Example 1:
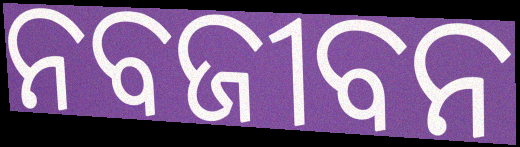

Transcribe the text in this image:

ନବଜୀବନ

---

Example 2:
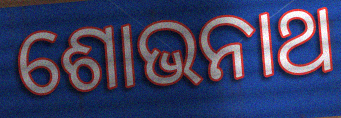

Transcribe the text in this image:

ଶୋଭନାଥ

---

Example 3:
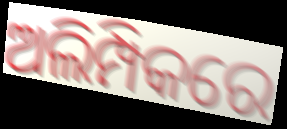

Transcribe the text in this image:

ଅଲିମ୍ପିକରେ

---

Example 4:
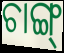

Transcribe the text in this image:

ଚାଙ୍ଗ୍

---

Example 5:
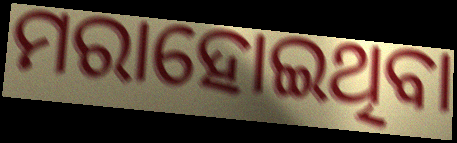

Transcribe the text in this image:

ମରାହୋଇଥିବା